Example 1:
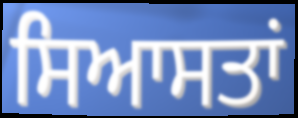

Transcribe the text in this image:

ਸਿਆਸਤਾਂ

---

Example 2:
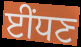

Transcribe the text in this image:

ਈਂਧਣ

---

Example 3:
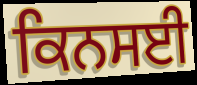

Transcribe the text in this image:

ਕਿਨਸਈ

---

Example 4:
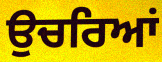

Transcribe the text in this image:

ਉਚਰਿਆਂ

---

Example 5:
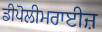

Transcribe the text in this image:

ਡੀਪੋਲੀਮਰਾਈਜ਼